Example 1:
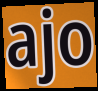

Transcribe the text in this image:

ajo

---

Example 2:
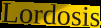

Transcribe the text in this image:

Lordosis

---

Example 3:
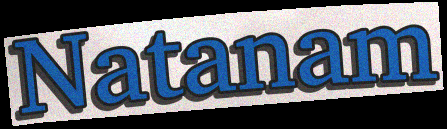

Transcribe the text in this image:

Natanam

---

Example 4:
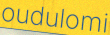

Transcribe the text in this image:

oudulomi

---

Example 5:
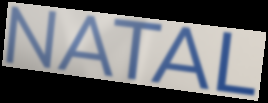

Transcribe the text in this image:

NATAL